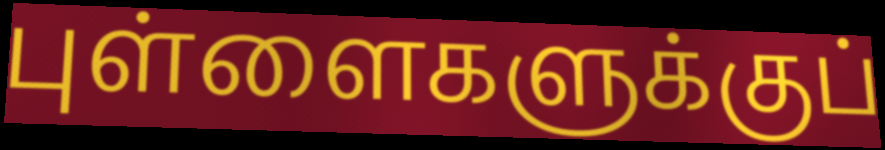
புள்ளைகளுக்குப்